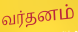
வர்தனம்